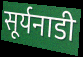
सूर्यनाडी